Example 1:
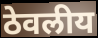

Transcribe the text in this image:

ठेवलीय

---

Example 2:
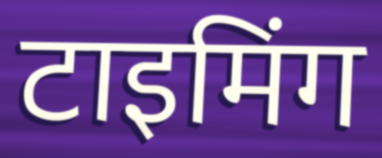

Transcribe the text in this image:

टाइमिंग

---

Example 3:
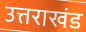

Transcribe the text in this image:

उत्तराखंड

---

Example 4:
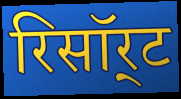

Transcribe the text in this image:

रिसॉर्ट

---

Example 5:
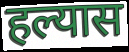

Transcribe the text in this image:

हल्यास